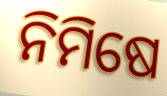
ନିମିଷେ